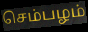
செம்பழம்